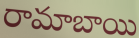
రామాబాయి